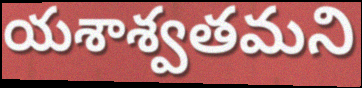
యశాశ్వతమని